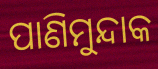
ପାଣିମୁନ୍ଦାକ